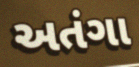
અતંગા